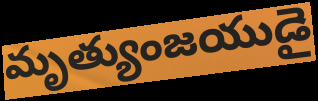
మృత్యుంజయుడై